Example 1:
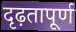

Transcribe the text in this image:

दृढ़तापूर्ण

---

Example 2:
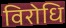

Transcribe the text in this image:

विरोधि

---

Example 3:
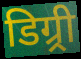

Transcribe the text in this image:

डिग्र्री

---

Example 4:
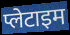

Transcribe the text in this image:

प्लेटाइम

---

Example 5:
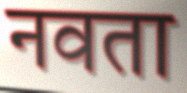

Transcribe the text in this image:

नवता